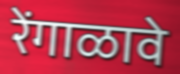
रेंगाळावे